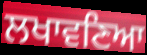
ਲਖਾਵਣਿਆ